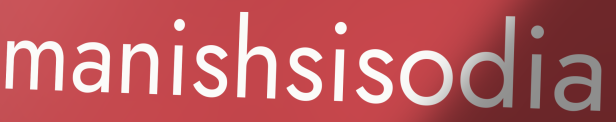
manishsisodia